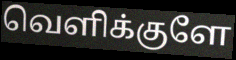
வெளிக்குளே